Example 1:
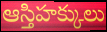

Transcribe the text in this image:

ఆస్తిహక్కులు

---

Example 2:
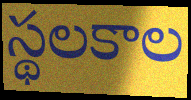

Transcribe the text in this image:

స్థలకాల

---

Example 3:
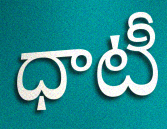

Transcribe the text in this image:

ధాటీ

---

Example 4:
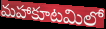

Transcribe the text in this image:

మహాకూటమిలో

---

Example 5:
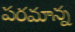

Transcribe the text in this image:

పరమాన్న